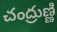
చంద్రుణ్ణి